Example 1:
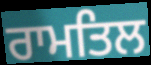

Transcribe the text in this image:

ਰਾਮਤਿਲ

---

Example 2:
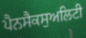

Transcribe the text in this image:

ਪੈਨਸੈਕਸੁਅਲਿਟੀ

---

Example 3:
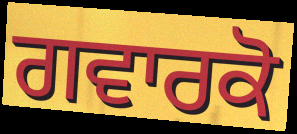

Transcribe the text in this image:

ਗਵਾਰਕੋ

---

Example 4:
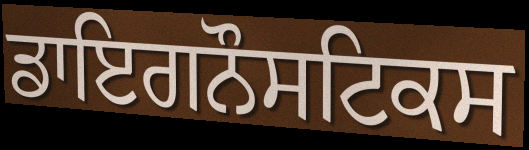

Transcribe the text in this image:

ਡਾਇਗਨੌਸਟਿਕਸ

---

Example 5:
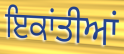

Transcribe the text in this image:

ਇਕਾਂਤੀਆਂ